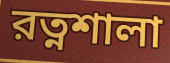
রত্নশালা